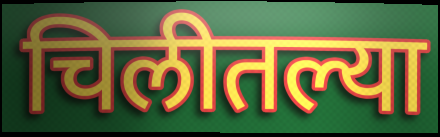
चिलीतल्या